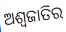
ଅଶ୍ୱଜାତିର